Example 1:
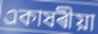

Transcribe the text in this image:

একাষৰীয়া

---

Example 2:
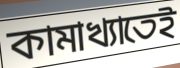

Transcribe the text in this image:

কামাখ্যাতেই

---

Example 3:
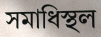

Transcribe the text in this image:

সমাধিস্থল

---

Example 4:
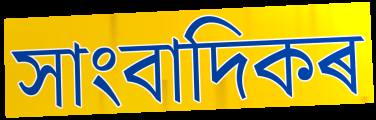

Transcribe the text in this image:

সাংবাদিকৰ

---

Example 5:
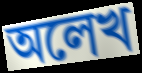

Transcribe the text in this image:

অলেখ